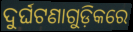
ଦୁର୍ଘଟଣାଗୁଡ଼ିକରେ